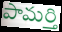
పామర్తి